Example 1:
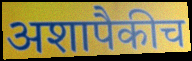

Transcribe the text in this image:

अशापैकीच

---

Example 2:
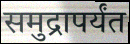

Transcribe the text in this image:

समुद्रापर्यंत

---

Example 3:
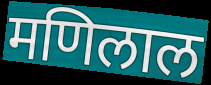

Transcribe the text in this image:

मणिलाल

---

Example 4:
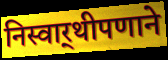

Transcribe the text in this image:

निस्वार्थीपणाने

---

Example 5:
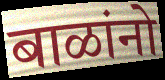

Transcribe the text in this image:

बाळांनो